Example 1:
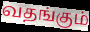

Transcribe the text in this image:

வதங்கும்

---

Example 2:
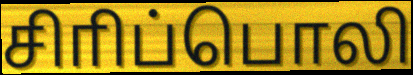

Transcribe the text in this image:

சிரிப்பொலி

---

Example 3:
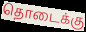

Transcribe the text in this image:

தொடைக்கு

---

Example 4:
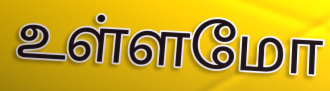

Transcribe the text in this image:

உள்ளமோ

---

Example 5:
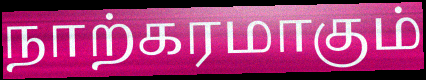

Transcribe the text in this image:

நாற்கரமாகும்